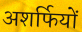
अशर्फियों